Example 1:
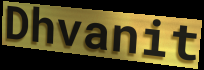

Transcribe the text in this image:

Dhvanit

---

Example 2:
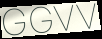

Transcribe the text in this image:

GGVV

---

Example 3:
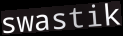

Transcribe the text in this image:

swastik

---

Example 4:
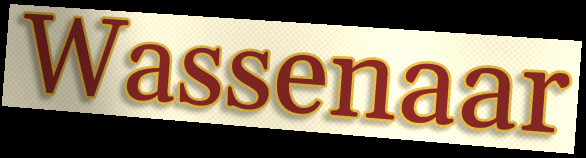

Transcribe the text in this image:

Wassenaar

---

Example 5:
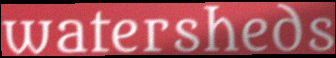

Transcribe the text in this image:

watersheds